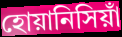
হোয়ানিসিয়াঁ